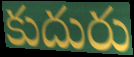
కుదురు